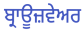
ਬ੍ਰਾਊਜ਼ਵੇਅਰ